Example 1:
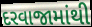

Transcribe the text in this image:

દરવાજામાંથી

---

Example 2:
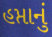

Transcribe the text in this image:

હપ્તાનું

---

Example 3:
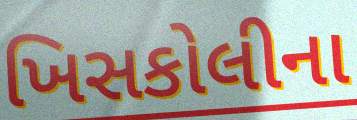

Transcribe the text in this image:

ખિસકોલીના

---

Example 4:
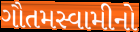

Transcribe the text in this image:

ગૌતમસ્વામીનો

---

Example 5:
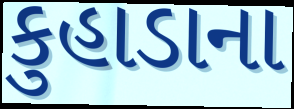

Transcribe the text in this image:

કુહાડાના